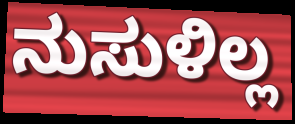
ನುಸುಳಿಲ್ಲ